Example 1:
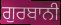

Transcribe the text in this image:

ਗੁਰਬਾਨੀ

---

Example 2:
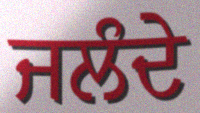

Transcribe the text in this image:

ਜਲੰਦੇ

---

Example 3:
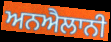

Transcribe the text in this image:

ਅਨਐਲਾਨੀ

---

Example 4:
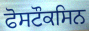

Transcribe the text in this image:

ਫੋਸਟੌਕਸਿਨ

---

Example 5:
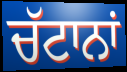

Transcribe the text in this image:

ਚੱਟਾਨਾਂ